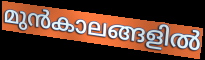
മുൻകാലങ്ങളിൽ